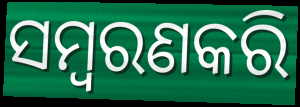
ସମ୍ବରଣକରି